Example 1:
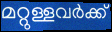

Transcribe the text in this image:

മറ്റുള്ളവർക്ക്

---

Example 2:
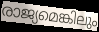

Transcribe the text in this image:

രാജ്യമെങ്കിലും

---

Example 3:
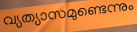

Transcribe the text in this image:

വ്യത്യാസമുണ്ടെന്നും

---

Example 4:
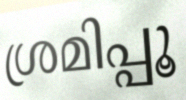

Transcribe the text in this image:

ശ്രമിപ്പൂ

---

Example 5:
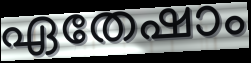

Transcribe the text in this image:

ഏതേഷാം